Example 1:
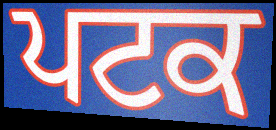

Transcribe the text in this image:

ਪਟਕ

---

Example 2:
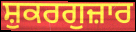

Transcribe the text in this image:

ਸ਼ੁਕਰਗੁਜ਼ਾਰ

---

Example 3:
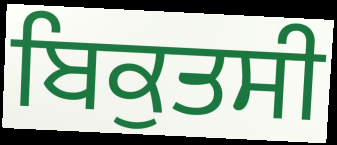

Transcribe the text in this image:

ਬਿਕੁਤਸੀ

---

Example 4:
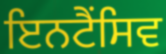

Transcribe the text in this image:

ਇਨਟੈਂਸਿਵ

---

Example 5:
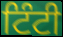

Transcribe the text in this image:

ਟਿੰਟੀ